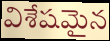
విశేషమైన